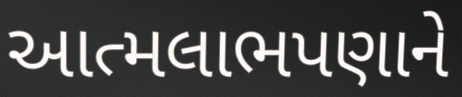
આત્મલાભપણાને